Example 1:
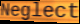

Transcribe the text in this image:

Neglect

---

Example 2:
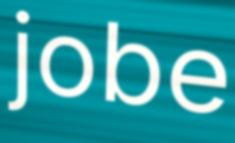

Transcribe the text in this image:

jobe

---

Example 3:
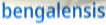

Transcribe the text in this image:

bengalensis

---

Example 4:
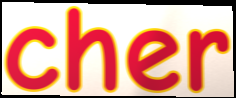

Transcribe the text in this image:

cher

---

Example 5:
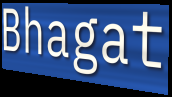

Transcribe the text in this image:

Bhagat